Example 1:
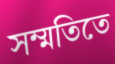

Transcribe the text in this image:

সম্মতিতে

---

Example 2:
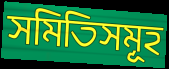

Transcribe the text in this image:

সমিতিসমূহ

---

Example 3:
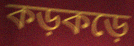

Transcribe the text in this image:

কড়কড়ে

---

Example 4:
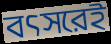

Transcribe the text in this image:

বৎসরেই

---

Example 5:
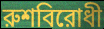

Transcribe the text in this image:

রুশবিরোধী